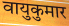
वायुकुमार